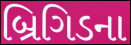
બ્રિગિડના